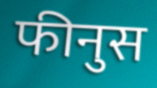
फीनुस